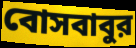
বোসবাবুর